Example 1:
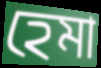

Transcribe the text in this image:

হেমা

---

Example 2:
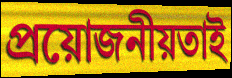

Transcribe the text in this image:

প্ৰয়োজনীয়তাই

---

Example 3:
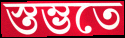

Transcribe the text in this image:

স্তম্ভতে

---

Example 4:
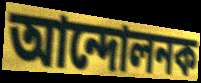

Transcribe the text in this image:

আন্দোলনক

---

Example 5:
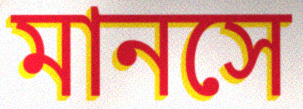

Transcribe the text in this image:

মানসে